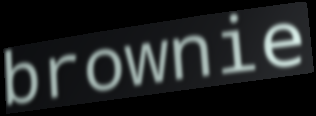
brownie